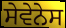
ਸੇਵੇਨੇਸ